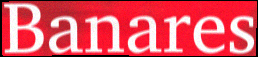
Banares